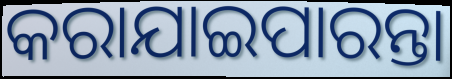
କରାଯାଇପାରନ୍ତା